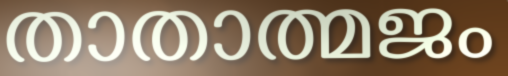
താതാത്മജം